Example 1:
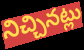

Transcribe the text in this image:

నిచ్చినట్లు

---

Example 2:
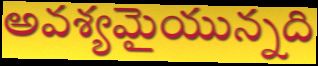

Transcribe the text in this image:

అవశ్యమైయున్నది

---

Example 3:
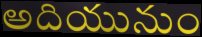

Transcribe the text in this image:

అదియునుం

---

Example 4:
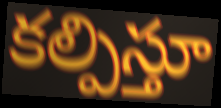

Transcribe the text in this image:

కల్పిస్తూ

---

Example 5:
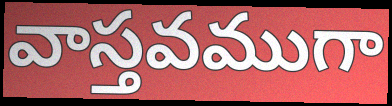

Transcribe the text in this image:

వాస్తవముగా